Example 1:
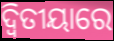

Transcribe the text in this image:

ଦ୍ଵିତୀୟାରେ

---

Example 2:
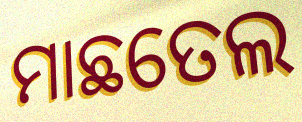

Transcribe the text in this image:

ମାଛତେଲ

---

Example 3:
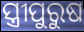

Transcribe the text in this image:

ସ୍ତ୍ରୀପୁରୁଷ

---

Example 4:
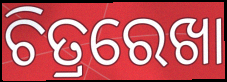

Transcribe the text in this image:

ଚିତ୍ରରେଖା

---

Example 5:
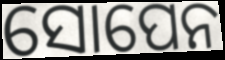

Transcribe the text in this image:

ସୋପେନ